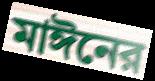
মাঈনের